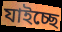
যাইচ্ছে